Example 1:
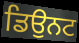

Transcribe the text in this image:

ਡਿਉਨਟ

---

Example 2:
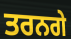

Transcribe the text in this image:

ਤਰਨਗੇ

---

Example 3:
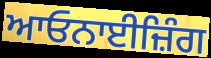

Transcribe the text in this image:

ਆਓਨਾਈਜ਼ਿੰਗ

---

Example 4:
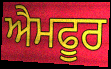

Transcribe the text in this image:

ਐਮਫੂਰ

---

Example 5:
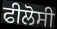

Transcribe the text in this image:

ਫੀਲੋਸੀ